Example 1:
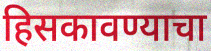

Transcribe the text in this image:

हिसकावण्याचा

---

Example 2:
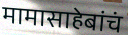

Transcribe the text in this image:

मामासाहेबांचं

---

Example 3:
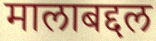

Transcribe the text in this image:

मालाबद्दल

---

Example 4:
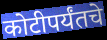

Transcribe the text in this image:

कोटीपर्यंतचे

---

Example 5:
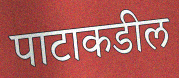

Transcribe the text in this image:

पाटाकडील